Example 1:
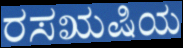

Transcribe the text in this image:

ರಸಋಷಿಯ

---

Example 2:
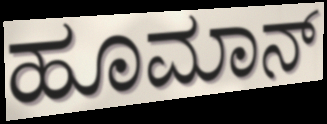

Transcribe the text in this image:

ಹೂಮಾನ್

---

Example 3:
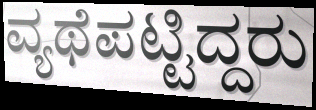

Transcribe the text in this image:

ವ್ಯಥೆಪಟ್ಟಿದ್ದರು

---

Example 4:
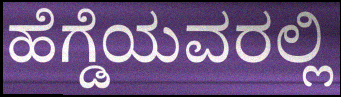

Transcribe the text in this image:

ಹೆಗ್ಡೆಯವರಲ್ಲಿ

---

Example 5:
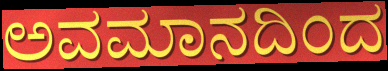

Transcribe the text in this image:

ಅವಮಾನದಿಂದ